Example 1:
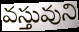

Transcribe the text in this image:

వస్తువుని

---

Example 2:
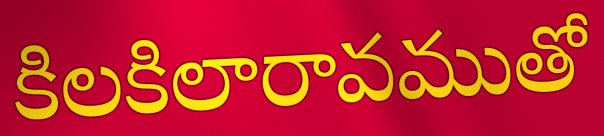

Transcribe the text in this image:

కిలకిలారావముతో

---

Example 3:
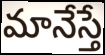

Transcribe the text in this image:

మానేస్తే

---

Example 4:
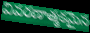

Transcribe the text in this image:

వివరణాత్మకమైన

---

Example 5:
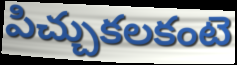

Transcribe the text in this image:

పిచ్చుకలకంటె